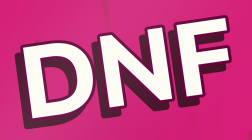
DNF